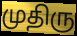
முதிரு